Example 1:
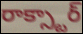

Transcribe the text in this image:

రాక్స్టార్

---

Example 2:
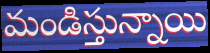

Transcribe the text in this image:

మండిస్తున్నాయి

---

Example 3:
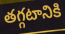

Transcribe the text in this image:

తగ్గటానికి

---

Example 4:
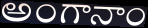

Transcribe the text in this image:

అంగానాం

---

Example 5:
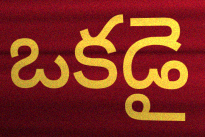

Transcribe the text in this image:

ఒకడై